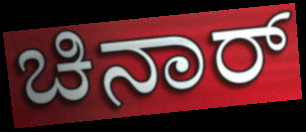
ಚಿನಾರ್